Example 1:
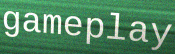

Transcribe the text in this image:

gameplay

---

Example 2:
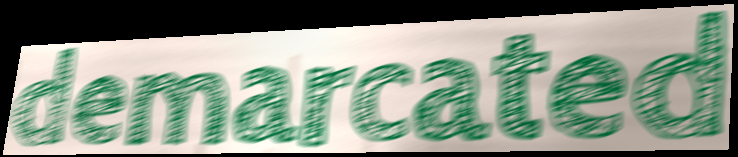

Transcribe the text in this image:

demarcated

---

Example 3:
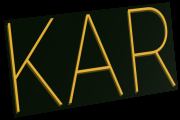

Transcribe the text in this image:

KAR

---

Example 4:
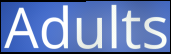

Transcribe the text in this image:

Adults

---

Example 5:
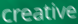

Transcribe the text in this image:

creative